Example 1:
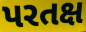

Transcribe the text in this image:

પરતક્ષ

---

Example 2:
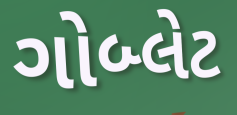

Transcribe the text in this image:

ગોબ્લેટ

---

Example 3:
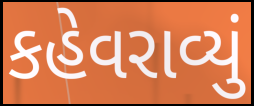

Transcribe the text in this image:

કહેવરાવ્યું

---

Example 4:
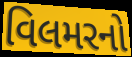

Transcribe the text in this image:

વિલમરનો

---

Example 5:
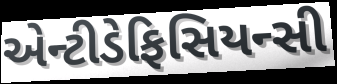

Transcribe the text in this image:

એન્ટીડેફિસિયન્સી